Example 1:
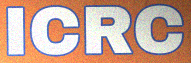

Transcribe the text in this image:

ICRC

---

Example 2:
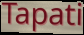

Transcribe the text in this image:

Tapati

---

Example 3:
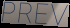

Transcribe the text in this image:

PREV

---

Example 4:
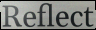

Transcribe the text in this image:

Reflect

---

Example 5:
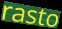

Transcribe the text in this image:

rasto